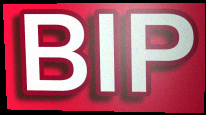
BIP